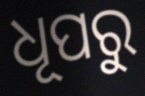
ଧୂପରୁ